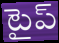
టైప్